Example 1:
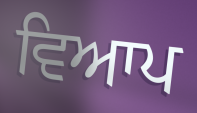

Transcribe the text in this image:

ਵਿਆਪ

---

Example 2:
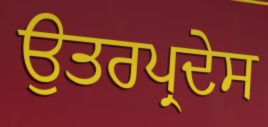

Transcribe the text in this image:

ਉਤਰਪ੍ਰਦੇਸ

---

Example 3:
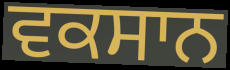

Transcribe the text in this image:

ਵਕਸਾਨ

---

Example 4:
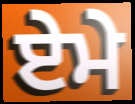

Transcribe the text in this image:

ਏਮੇ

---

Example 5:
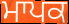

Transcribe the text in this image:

ਮਾਪਕ